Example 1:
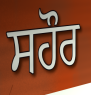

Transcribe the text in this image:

ਸਹੌਰ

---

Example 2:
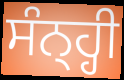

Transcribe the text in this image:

ਸੰਨ੍ਹ੍ਹੀ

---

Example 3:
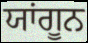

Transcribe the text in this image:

ਯਾਂਗੂਨ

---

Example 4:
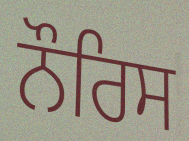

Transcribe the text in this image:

ਨੌਰਿਸ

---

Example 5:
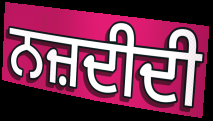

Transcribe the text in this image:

ਨਜ਼ਦੀਦੀ